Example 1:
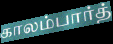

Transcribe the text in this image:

காலம்பார்த்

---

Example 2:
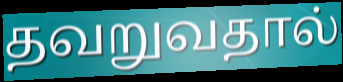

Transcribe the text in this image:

தவறுவதால்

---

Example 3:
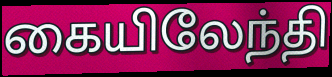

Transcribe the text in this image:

கையிலேந்தி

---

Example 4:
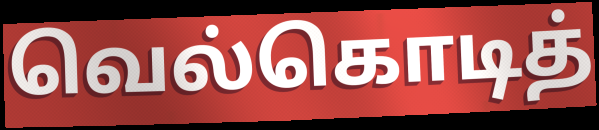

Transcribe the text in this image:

வெல்கொடித்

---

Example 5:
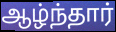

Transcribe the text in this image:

ஆழ்ந்தார்